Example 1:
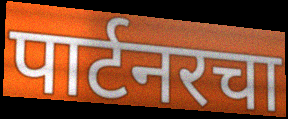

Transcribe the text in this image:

पार्टनरचा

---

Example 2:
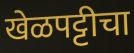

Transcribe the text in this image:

खेळपट्टीचा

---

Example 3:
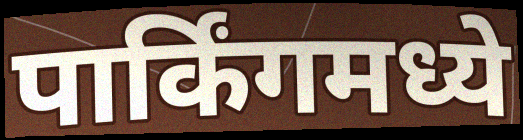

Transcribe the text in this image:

पार्किंगमध्ये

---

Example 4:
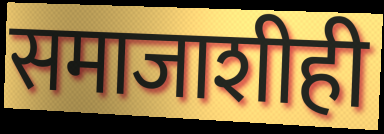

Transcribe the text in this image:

समाजाशीही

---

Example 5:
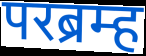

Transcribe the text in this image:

परब्रम्ह